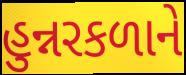
હુન્નરકળાને